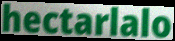
hectarlalo